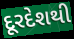
દૂરદેશથી